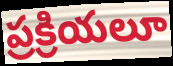
ప్రక్రియలూ